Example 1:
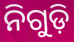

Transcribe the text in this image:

ନିଗୁଡ଼ି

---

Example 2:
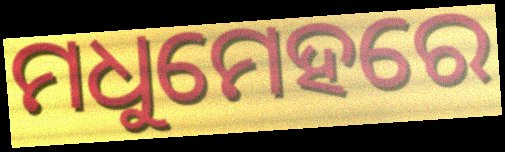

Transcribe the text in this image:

ମଧୁମେହରେ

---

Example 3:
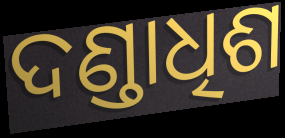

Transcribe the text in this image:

ଦଣ୍ଡାଧିଶ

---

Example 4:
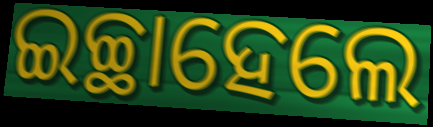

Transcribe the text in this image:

ଇଚ୍ଛାହେଲେ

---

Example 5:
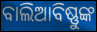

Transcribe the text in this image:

ବାଲିଆବିଷ୍ଣୁଙ୍କ